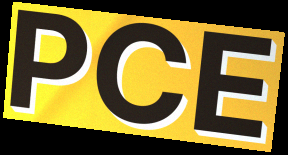
PCE